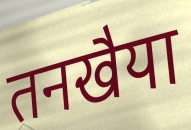
तनखैया